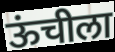
ऊंचीला